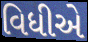
વિધીએ